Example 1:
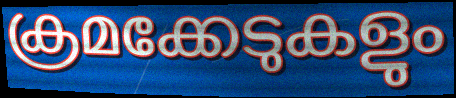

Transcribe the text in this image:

ക്രമക്കേടുകളും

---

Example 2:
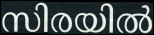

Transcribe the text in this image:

സിരയിൽ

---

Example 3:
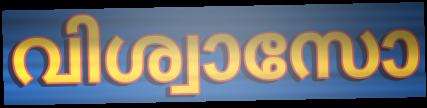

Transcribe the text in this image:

വിശ്വാസോ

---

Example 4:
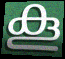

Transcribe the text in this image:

കൂ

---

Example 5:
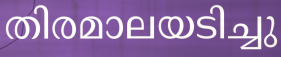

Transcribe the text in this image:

തിരമാലയടിച്ചു